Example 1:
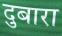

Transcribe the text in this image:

दुबारा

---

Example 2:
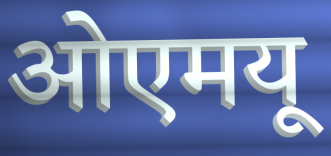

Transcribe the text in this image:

ओएमयू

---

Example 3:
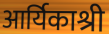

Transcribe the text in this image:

आर्यिकाश्री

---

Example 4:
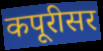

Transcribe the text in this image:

कपूरीसर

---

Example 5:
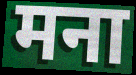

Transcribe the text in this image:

मना